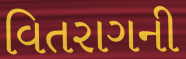
વિતરાગની